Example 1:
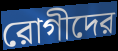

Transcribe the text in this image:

রোগীদের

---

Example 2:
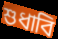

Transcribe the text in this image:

শুধাবি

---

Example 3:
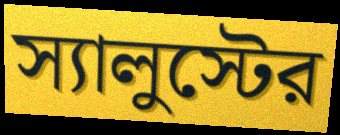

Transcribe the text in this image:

স্যালুস্টের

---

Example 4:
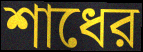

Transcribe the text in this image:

শাধের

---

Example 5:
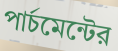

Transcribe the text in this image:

পার্চমেন্টের